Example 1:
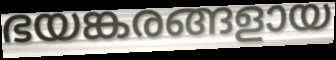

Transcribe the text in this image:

ഭയങ്കരങ്ങളായ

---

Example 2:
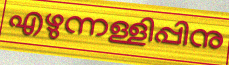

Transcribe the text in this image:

എഴുന്നള്ളിപ്പിനു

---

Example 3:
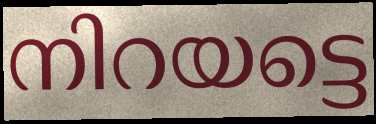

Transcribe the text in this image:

നിറയട്ടെ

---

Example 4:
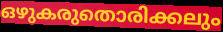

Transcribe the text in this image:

ഒഴുകരുതൊരിക്കലും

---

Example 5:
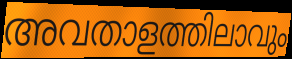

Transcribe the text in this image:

അവതാളത്തിലാവും